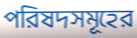
পরিষদসমূহের